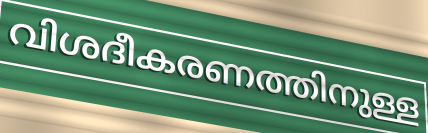
വിശദീകരണത്തിനുള്ള